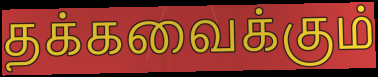
தக்கவைக்கும்